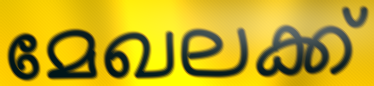
മേഖലക്ക്